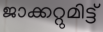
ജാക്കറ്റുമിട്ട്